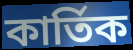
কাৰ্তিক